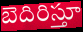
బెదిరిస్తూ